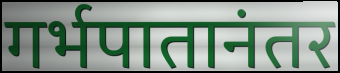
गर्भपातानंतर